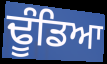
ਢੂੰਡਿਆ